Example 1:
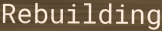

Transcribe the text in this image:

Rebuilding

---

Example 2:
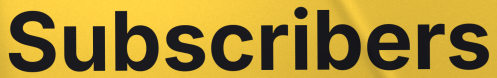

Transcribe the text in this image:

Subscribers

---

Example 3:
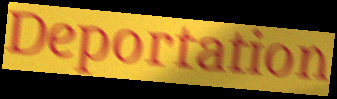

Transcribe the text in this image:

Deportation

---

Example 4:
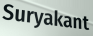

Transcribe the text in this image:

Suryakant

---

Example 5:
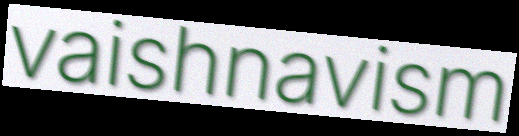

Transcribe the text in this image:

vaishnavism